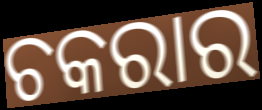
ଚକରାର